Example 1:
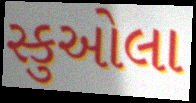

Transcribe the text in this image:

સ્કુઓલા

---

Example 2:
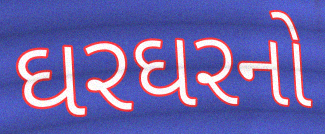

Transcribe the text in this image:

ઘરઘરનો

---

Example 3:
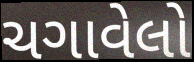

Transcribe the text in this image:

ચગાવેલો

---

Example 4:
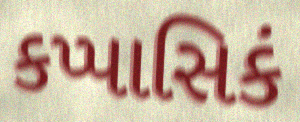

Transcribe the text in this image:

કપ્પાસિકં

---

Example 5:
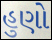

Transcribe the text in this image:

હુણો